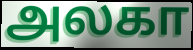
அலகா